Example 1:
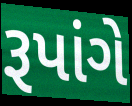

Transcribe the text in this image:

રૂપાંગે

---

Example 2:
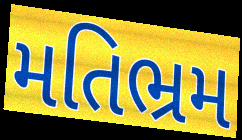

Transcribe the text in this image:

મતિભ્રમ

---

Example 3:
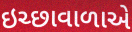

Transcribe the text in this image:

ઇચ્છાવાળાએ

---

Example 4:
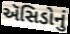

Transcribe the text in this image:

ઍસિડોનું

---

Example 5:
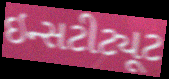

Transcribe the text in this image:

ઇન્સટીટ્યૂટ